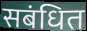
सबंधित